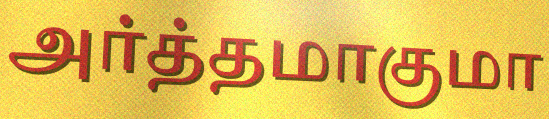
அர்த்தமாகுமா